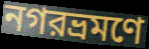
নগরভ্রমণে